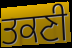
ਤਕਣੀ